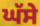
ਘੱਸੇ